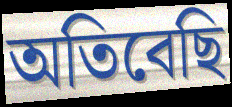
অতিবেছি